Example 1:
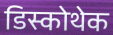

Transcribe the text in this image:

डिस्कोथेक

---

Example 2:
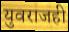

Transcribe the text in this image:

युवराजही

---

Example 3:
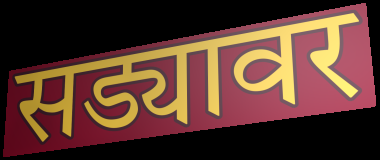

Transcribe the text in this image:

सड्यावर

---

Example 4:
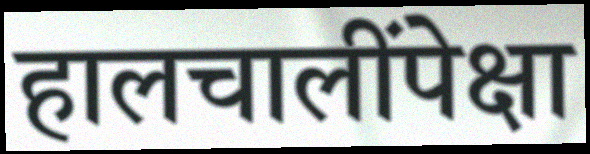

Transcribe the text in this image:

हालचालींपेक्षा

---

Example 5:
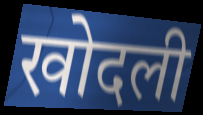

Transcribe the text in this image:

खोदली